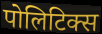
पोलिटिक्स